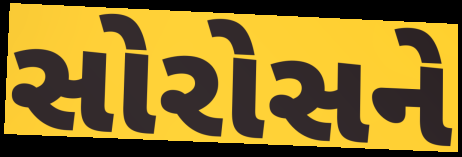
સોરોસને